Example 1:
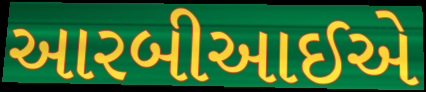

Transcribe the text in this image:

આરબીઆઈએ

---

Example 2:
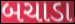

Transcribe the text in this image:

બચાડા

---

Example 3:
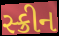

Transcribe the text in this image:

સ્ક્રીન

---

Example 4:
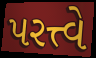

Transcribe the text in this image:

પરત્ત્વે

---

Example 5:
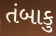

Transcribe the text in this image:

તંબાકુ